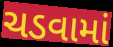
ચડવામાં